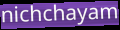
nichchayam